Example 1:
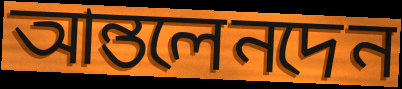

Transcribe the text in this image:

আন্তলেনদেন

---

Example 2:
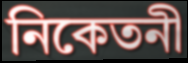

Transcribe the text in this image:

নিকেতনী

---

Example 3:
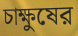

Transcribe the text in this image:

চাক্ষুষের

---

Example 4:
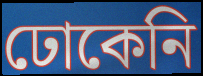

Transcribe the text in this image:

ঢোকেনি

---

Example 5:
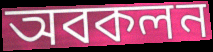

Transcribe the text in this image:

অবকলন